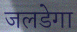
जलडेगा